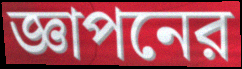
জ্ঞাপনের